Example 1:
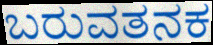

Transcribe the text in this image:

ಬರುವತನಕ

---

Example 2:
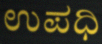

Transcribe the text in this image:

ಉಪಧಿ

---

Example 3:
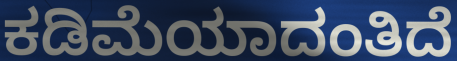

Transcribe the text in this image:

ಕಡಿಮೆಯಾದಂತಿದೆ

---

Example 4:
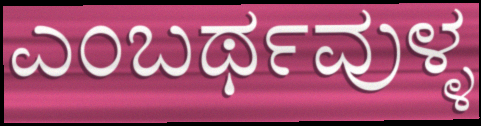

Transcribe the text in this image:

ಎಂಬರ್ಥವುಳ್ಳ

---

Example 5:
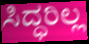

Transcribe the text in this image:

ಸಿದ್ಧರಿಲ್ಲ